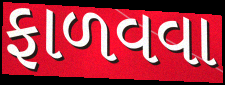
ફાળવવા